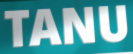
TANU